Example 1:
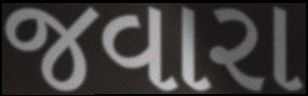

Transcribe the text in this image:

જવારા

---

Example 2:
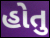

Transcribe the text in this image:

હોતુ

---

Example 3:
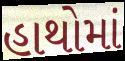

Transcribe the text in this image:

હાથોમાં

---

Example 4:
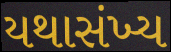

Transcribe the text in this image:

યથાસંખ્ય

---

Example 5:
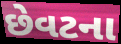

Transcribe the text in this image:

છેવટના